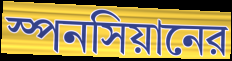
স্পনসিয়ানের